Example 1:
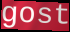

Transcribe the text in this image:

gost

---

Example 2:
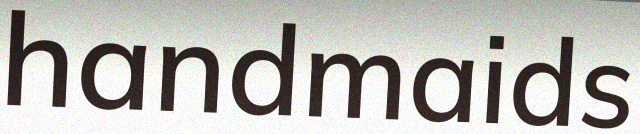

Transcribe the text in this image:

handmaids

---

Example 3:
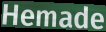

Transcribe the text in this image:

Hemade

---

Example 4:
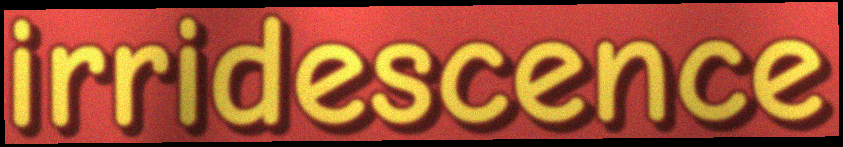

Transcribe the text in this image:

irridescence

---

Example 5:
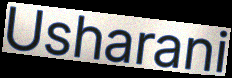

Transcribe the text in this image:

Usharani